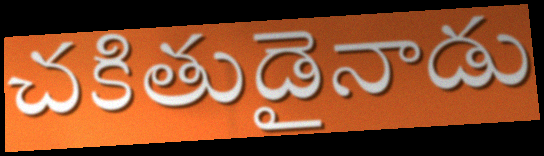
చకితుడైనాడు